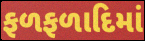
ફળફળાદિમાં